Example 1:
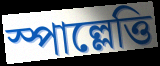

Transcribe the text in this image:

স্পাল্লেত্তি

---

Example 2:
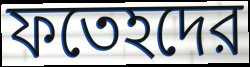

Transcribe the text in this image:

ফতেহদের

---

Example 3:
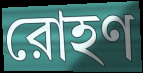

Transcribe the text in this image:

রোহণ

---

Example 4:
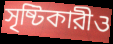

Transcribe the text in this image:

সৃষ্টিকারীও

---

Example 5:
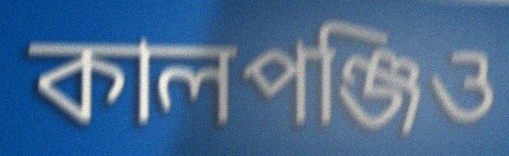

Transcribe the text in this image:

কালপঞ্জিও